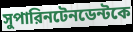
সুপারিনটেনডেন্টকে